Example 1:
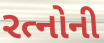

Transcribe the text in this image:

રત્નોની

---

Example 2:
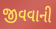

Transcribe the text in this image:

જીવવાની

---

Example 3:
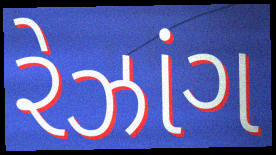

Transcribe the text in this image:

રેઝાંગ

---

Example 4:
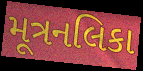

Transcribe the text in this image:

મૂત્રનલિકા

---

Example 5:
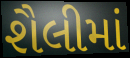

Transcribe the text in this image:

શૈલીમાં